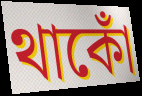
থাকোঁ